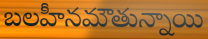
బలహీనమౌతున్నాయి